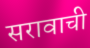
सरावाची